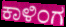
ಕಾಳಿಂಗ